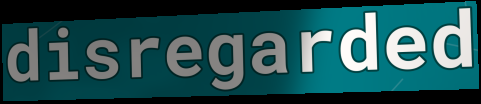
disregarded